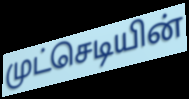
முட்செடியின்